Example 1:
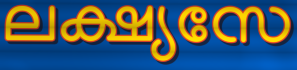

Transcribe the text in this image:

ലക്ഷ്യസേ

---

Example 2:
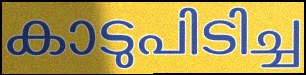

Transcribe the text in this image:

കാടുപിടിച്ച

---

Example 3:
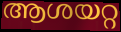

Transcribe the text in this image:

ആശയറ്റ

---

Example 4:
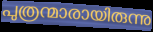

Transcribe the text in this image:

പുത്രന്മാരായിരുന്നു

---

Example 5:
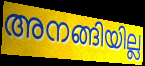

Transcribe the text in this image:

അനങ്ങിയില്ല